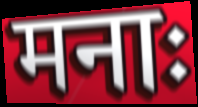
मनाः